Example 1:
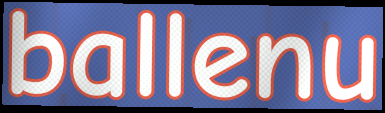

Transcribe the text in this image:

ballenu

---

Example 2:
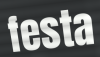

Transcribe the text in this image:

festa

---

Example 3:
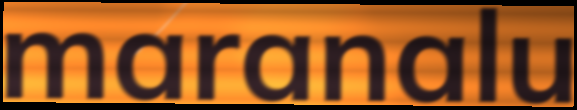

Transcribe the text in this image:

maranalu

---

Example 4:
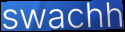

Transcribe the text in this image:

swachh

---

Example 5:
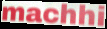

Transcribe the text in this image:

machhi